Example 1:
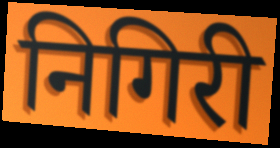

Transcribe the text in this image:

निगिरी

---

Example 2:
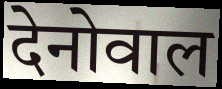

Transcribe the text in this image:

देनोवाल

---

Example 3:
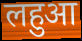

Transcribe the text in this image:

लहुआ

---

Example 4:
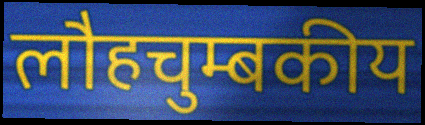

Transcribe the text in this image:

लौहचुम्बकीय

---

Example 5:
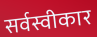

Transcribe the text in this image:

सर्वस्वीकार